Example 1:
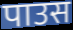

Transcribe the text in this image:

पाउस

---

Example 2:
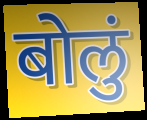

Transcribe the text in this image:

बोलुं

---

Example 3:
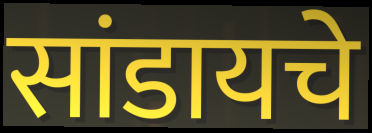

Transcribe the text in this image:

सांडायचे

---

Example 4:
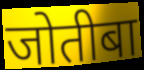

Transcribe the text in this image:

जोतीबा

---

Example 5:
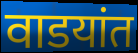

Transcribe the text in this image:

वाडयांत